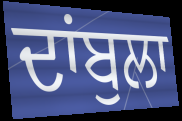
ਦਾਂਬੁਲਾ